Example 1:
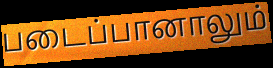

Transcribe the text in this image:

படைப்பானாலும்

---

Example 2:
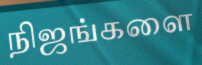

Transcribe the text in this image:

நிஜங்களை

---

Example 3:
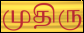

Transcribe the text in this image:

முதிரு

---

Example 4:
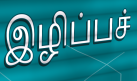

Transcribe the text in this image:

இழிப்பச்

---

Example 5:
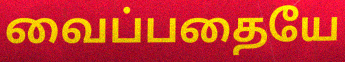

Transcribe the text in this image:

வைப்பதையே